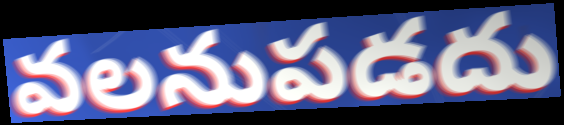
వలనుపడదు